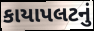
કાયાપલટનું